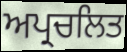
ਅਪ੍ਰਚਲਿਤ